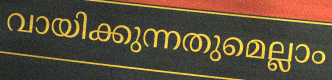
വായിക്കുന്നതുമെല്ലാം